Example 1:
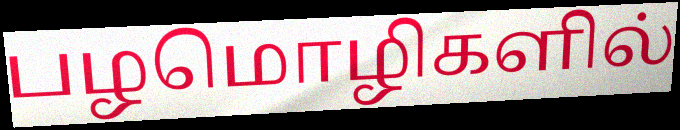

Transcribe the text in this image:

பழமொழிகளில்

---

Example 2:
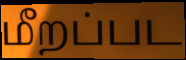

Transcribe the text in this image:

மீறப்பட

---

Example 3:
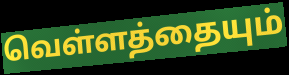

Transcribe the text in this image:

வெள்ளத்தையும்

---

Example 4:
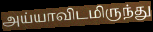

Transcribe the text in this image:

அய்யாவிடமிருந்து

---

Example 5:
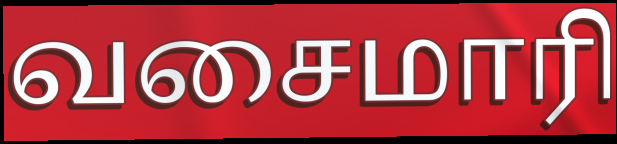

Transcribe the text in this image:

வசைமாரி